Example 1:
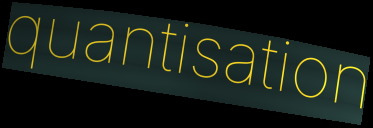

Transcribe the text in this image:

quantisation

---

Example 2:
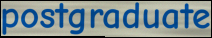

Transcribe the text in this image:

postgraduate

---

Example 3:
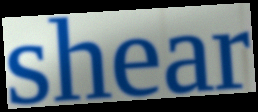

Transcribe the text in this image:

shear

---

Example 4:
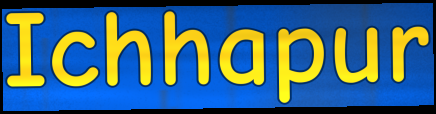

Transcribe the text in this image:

Ichhapur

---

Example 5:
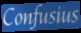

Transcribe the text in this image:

Confusius